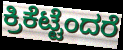
ಕ್ರಿಕೆಟ್ಟೆಂದರೆ